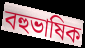
বহুভাষিক